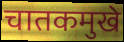
चातकमुखे